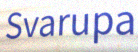
Svarupa